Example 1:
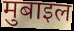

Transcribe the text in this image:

मुबाइल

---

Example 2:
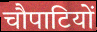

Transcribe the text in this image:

चौपाटियों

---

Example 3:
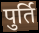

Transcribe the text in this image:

पुर्ति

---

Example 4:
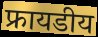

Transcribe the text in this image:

फ्रायडीय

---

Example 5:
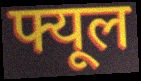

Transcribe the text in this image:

फ्यूल